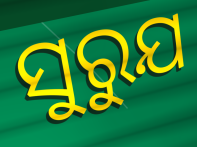
ସୁରୁଯ